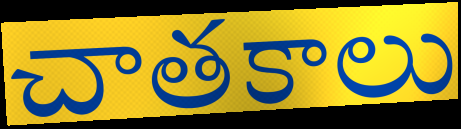
చాతకాలు